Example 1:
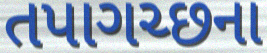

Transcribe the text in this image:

તપાગચ્છના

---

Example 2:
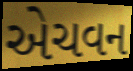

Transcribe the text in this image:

એચવન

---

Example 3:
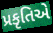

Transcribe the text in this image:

પ્રકૃતિએ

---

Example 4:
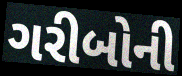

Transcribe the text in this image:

ગરીબોની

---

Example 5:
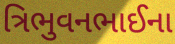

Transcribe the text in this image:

ત્રિભુવનભાઈના